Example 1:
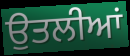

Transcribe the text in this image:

ਉਤਲੀਆਂ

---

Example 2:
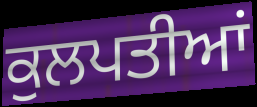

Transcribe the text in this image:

ਕੁਲਪਤੀਆਂ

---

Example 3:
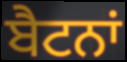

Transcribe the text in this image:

ਬੈਟਨਾਂ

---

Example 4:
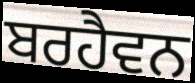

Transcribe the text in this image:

ਬਰਹੈਵਨ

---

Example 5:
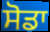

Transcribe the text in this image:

ਸੋਡਾ